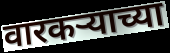
वारकऱ्याच्या